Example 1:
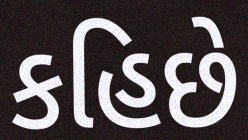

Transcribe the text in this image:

કહિછે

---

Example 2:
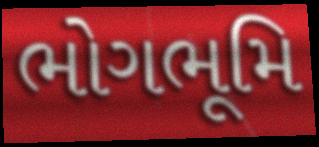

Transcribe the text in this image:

ભોગભૂમિ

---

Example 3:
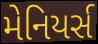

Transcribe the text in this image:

મેનિયર્સ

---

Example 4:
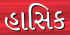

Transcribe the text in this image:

હાસિક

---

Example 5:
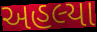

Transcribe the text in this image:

અહલ્યા